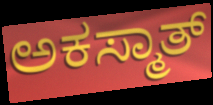
ಅಕಸ್ಮಾತ್